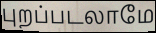
புறப்படலாமே